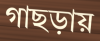
গাছড়ায়